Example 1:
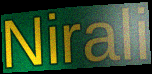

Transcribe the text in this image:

Nirali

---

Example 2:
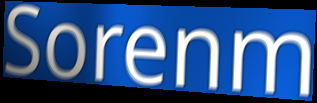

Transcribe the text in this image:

Sorenm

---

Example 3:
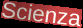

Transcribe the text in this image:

Scienza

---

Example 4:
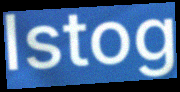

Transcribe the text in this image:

Istog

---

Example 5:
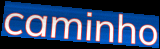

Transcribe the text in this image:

caminho